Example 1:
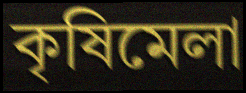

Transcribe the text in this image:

কৃষিমেলা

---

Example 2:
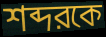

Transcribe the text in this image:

শব্দরকে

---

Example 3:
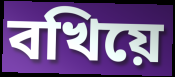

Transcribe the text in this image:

বখিয়ে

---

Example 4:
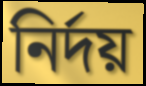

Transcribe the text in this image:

নির্দয়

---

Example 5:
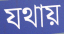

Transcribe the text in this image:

যথায়